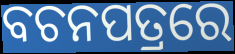
ବଚନପତ୍ରରେ